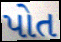
પોત